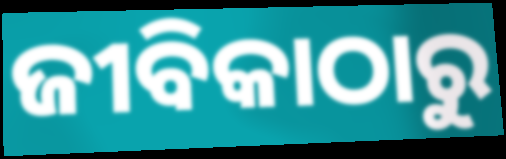
ଜୀବିକାଠାରୁ